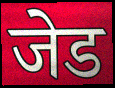
जेड